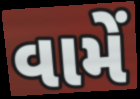
વામેં